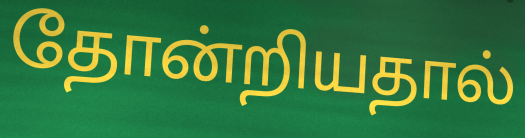
தோன்றியதால்